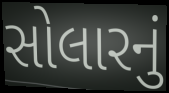
સોલારનું